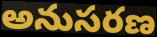
అనుసరణ